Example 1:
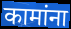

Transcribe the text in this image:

कामांना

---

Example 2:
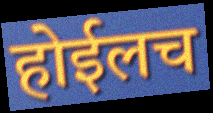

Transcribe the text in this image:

होईलच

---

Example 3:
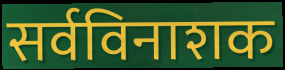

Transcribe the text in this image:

सर्वविनाशक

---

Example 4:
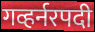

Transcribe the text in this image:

गव्हर्नरपदी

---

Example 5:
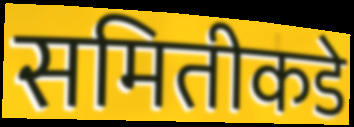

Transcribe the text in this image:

समितीकडे